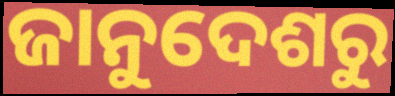
ଜାନୁଦେଶରୁ